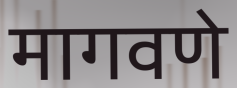
मागवणे